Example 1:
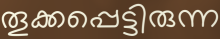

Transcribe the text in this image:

തൂക്കപ്പെട്ടിരുന്ന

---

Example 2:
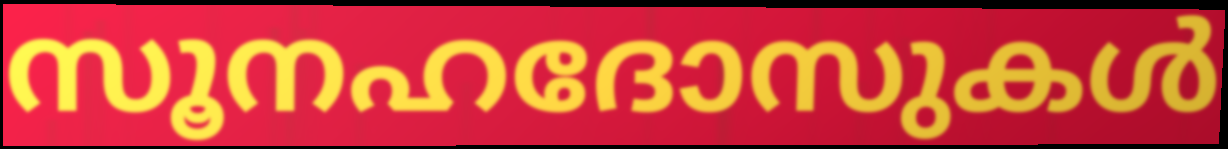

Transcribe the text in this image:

സൂനഹദോസുകൾ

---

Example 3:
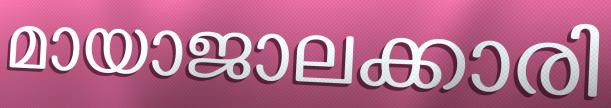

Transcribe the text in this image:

മായാജാലക്കാരി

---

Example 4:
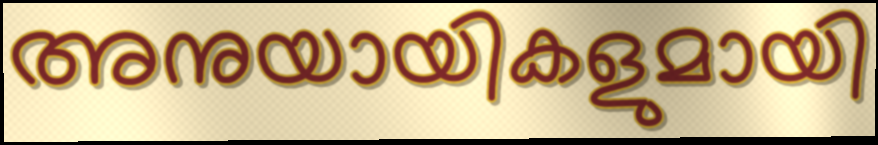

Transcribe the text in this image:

അനുയായികളുമായി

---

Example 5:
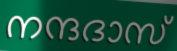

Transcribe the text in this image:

നന്ദദാസ്